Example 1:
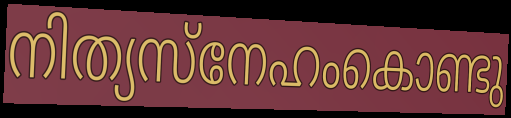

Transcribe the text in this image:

നിത്യസ്നേഹംകൊണ്ടു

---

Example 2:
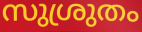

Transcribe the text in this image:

സുശ്രുതം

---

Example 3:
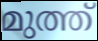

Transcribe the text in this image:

മുത്ത്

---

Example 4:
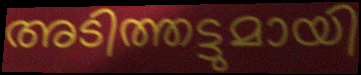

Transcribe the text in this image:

അടിത്തട്ടുമായി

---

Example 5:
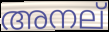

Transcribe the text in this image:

അനല്